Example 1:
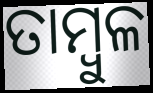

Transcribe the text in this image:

ତାମ୍ୱୁଳ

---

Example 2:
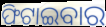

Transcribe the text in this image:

ଫିଟାଇବାର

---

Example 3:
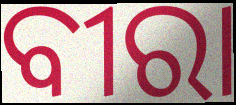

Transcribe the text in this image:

ବୀରା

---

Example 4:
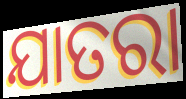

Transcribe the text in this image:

ଯାତରା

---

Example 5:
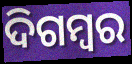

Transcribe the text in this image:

ଦିଗମ୍ୱର